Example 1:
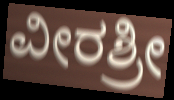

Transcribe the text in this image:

ವೀರಶ್ರೀ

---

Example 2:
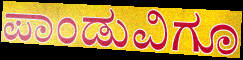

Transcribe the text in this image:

ಪಾಂಡುವಿಗೂ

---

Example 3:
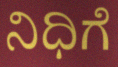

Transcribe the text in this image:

ನಿಧಿಗೆ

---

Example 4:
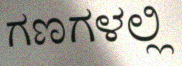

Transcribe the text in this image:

ಗಣಗಳಲ್ಲಿ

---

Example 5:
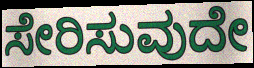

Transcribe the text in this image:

ಸೇರಿಸುವುದೇ